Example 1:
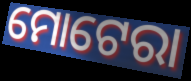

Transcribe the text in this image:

ମୋଟେରା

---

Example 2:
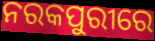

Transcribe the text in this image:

ନରକପୁରୀରେ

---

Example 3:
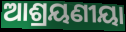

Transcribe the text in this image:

ଆଶ୍ରୟଣୀୟା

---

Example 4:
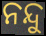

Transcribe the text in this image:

ନନ୍ଦୁ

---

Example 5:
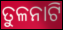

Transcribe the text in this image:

ତୁଳନାଟି